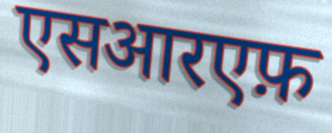
एसआरएफ़